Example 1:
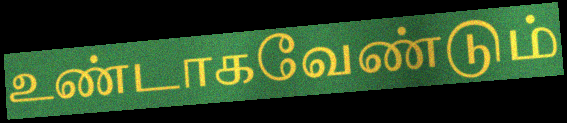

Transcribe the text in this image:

உண்டாகவேண்டும்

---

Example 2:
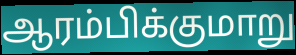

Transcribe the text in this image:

ஆரம்பிக்குமாறு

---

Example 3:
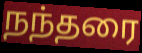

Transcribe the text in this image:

நந்தரை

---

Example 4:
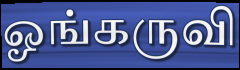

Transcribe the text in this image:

ஓங்கருவி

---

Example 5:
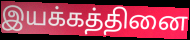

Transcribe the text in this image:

இயக்கத்தினை